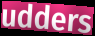
udders